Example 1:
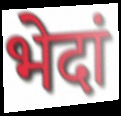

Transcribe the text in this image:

भेदां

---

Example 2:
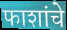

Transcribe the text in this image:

फाशांचे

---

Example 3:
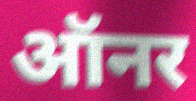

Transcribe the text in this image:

ऑनर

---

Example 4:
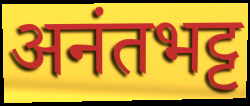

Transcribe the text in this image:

अनंतभट्ट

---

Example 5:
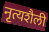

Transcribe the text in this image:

नृत्यशैली